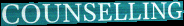
COUNSELLING